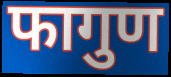
फागुण